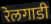
रेलगाडी